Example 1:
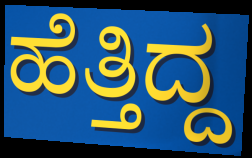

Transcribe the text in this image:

ಹೆತ್ತಿದ್ದ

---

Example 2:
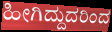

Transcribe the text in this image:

ಹೀಗಿದ್ದುದರಿಂದ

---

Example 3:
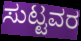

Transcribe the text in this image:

ಸುಟ್ಟವರ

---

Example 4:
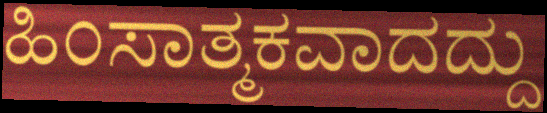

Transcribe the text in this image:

ಹಿಂಸಾತ್ಮಕವಾದದ್ದು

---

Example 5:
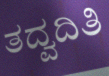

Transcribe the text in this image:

ತದ್ವದಿತಿ